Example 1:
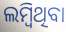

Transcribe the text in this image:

ଲମ୍ବିଥିବା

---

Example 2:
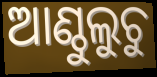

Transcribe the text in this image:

ଆଣ୍ଠୁଲୁଚୁ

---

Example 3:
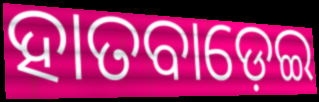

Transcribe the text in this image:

ହାତବାଡ଼େଇ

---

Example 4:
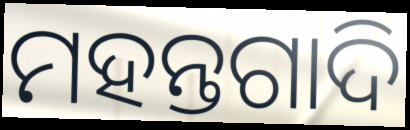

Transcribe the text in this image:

ମହନ୍ତଗାଦି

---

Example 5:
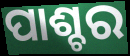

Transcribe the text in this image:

ପାଶ୍ଚର